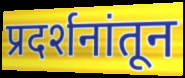
प्रदर्शनांतून